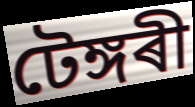
টেঙ্গৰী